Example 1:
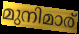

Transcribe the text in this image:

മുനിമാര്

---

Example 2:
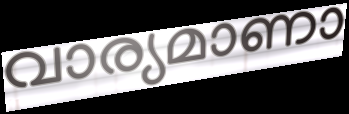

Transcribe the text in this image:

വാര്യമാണാ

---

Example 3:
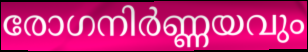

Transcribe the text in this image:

രോഗനിർണ്ണയവും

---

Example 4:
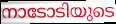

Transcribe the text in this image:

നാടോടിയുടെ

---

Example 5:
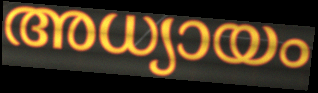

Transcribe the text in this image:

അധ്യായം